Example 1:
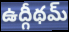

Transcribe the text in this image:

ఉద్గీథమ్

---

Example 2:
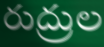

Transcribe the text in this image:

రుద్రుల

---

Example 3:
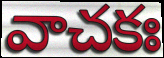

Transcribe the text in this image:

వాచకః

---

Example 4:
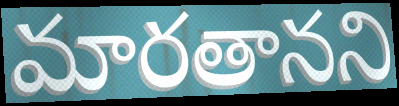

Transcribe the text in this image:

మారతానని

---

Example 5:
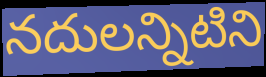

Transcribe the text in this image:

నదులన్నిటిని